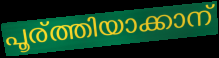
പൂര്ത്തിയാക്കാന്